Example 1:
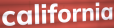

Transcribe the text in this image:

california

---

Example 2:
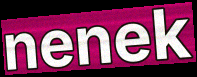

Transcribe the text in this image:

nenek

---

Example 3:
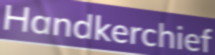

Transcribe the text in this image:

Handkerchief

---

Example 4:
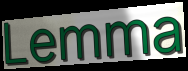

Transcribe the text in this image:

Lemma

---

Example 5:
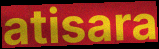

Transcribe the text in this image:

atisara